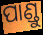
ପାଣ୍ଡୁ